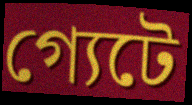
গ্যেটে